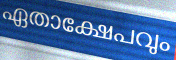
ഏതാക്ഷേപവും